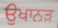
ਉਖਾਨੜ